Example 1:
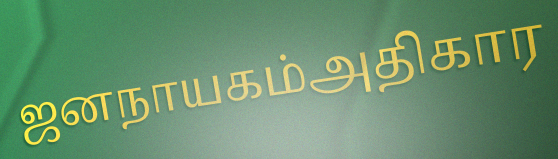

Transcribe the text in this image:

ஜனநாயகம்அதிகார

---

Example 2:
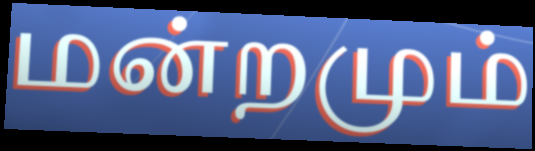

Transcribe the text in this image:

மன்றமும்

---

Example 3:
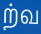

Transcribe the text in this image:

ற்வ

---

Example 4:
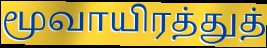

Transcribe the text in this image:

மூவாயிரத்துத்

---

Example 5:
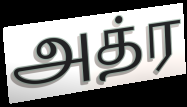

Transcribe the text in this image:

அத்ர